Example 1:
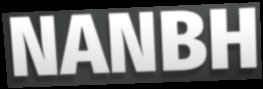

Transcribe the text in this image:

NANBH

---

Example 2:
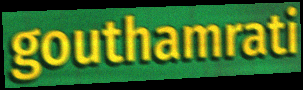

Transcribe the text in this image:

gouthamrati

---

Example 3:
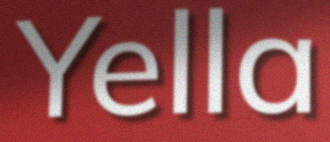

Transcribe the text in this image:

Yella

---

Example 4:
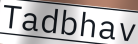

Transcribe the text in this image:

Tadbhav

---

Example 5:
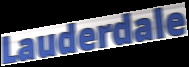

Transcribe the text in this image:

Lauderdale